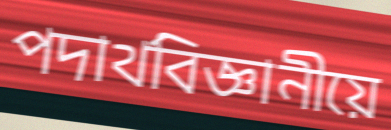
পদাৰ্থবিজ্ঞানীয়ে